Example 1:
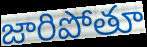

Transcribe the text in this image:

జారిపోతూ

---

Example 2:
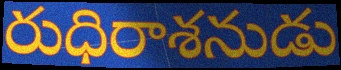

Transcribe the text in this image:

రుధిరాశనుడు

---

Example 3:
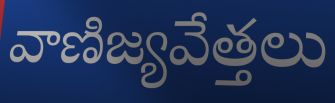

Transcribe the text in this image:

వాణిజ్యవేత్తలు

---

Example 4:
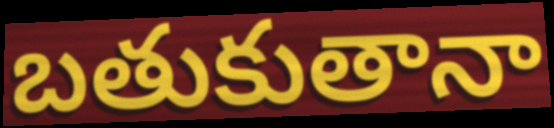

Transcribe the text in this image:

బతుకుతానా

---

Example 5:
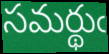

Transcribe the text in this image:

సమర్థుఁ